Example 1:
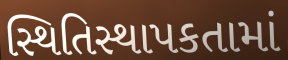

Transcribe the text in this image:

સ્થિતિસ્થાપકતામાં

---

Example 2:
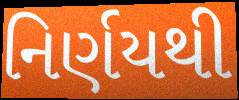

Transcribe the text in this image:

નિર્ણયથી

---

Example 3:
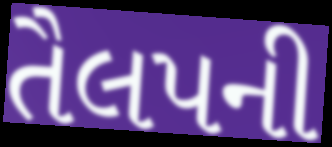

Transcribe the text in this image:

તૈલપની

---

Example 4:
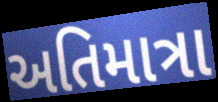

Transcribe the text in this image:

અતિમાત્રા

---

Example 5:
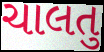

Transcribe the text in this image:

ચાલતુ